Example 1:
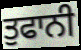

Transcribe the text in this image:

ਤੁਫਾਨੀ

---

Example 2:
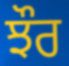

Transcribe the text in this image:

ਝੌਰ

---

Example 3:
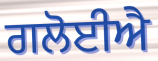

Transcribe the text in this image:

ਗਲੋਈਐ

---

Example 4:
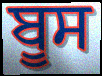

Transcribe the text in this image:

ਬੂਸ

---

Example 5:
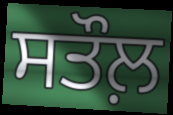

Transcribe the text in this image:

ਸਤੌਲ਼